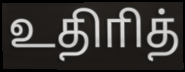
உதிரித்